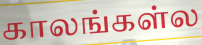
காலங்கள்ல